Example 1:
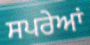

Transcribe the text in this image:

ਸਪਰੇਆਂ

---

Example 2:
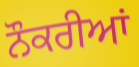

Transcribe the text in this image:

ਨੌਕਰੀਆਂ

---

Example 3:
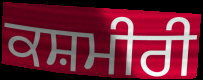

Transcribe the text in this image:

ਕਸ਼ਮੀਰੀ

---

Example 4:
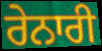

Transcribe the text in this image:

ਰੇਨਾਰੀ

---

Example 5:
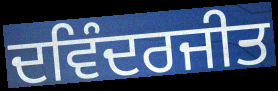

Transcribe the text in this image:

ਦਵਿੰਦਰਜੀਤ